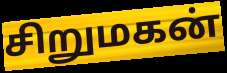
சிறுமகன்